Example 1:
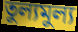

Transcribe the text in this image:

তুল্যমুল্য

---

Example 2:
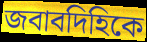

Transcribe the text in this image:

জবাবদিহিকে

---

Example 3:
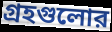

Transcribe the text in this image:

গ্রহগুলোর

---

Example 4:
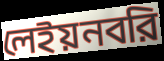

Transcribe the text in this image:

লেইয়নবরি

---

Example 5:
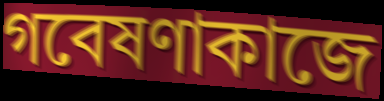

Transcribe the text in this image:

গবেষণাকাজে